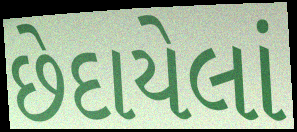
છેદાયેલાં